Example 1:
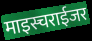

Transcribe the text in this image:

माइस्चराईजर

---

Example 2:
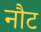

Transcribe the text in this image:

नौट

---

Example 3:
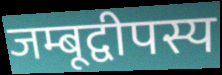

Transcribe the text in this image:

जम्बूद्वीपस्य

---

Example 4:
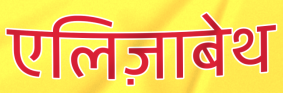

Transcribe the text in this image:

एलिज़ाबेथ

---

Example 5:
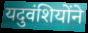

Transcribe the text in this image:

यदुवंशियोंने